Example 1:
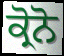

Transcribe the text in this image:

ਕ੍ਰੋਨੋ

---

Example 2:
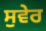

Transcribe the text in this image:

ਸੁਵੇਰ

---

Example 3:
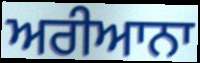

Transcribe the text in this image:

ਅਰੀਆਨਾ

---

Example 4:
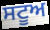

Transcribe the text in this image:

ਸਟੂਅ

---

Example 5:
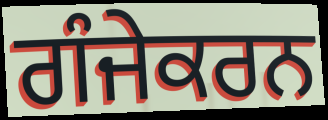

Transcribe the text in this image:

ਗੰਜੇਕਰਨ